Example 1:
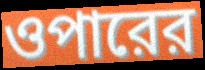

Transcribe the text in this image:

ওপারের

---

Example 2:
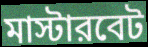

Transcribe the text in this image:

মাস্টারবেট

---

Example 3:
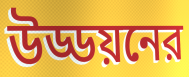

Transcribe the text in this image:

উড্ডয়নের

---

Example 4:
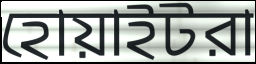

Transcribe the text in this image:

হোয়াইটরা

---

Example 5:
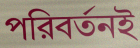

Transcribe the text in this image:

পরিবর্তনই